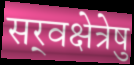
सर्वक्षेत्रेषु